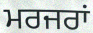
ਮਰਜਰਾਂ